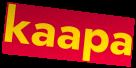
kaapa